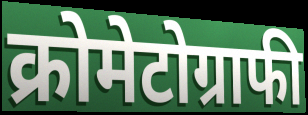
क्रोमेटोग्राफी